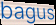
bagus